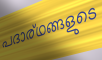
പദാര്ഥങ്ങളുടെ